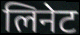
लिनेट